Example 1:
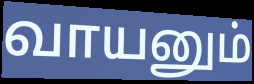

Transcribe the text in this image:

வாயனும்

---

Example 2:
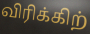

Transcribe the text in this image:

விரிக்கிற்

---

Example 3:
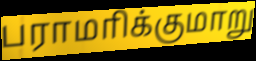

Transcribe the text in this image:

பராமரிக்குமாறு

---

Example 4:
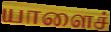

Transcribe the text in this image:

யாளைச்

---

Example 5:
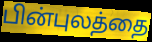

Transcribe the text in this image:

பின்புலத்தை